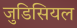
जुडिसियल